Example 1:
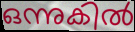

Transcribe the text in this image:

ഒന്നുകിൽ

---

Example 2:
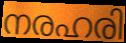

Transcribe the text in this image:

നരഹരി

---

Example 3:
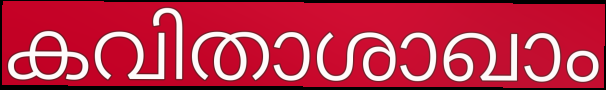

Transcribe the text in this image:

കവിതാശാഖാം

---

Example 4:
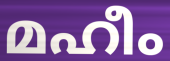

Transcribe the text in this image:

മഹീം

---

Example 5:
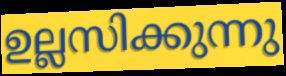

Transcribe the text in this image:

ഉല്ലസിക്കുന്നു